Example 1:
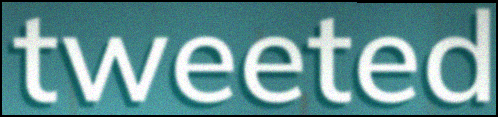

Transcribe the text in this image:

tweeted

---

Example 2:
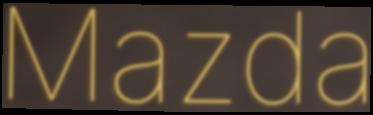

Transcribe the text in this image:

Mazda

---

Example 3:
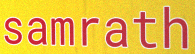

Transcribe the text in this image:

samrath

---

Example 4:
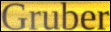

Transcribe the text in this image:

Gruber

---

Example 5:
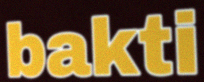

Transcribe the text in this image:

bakti